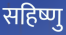
सहिष्णु